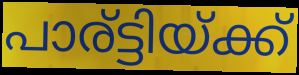
പാര്ട്ടിയ്ക്ക്